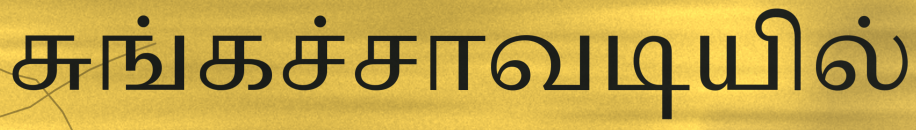
சுங்கச்சாவடியில்